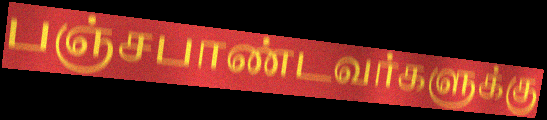
பஞ்சபாண்டவர்களுக்கு